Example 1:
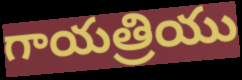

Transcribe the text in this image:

గాయత్రియు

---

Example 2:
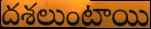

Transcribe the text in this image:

దశలుంటాయి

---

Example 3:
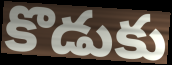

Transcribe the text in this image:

కొడుకు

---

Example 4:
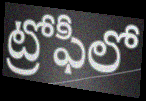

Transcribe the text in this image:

ట్రోఫీలో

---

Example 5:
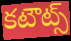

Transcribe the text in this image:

కటౌట్స్